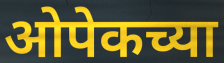
ओपेकच्या